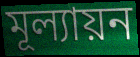
মূল্যায়ন